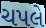
ચપલે